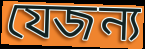
যেজন্য